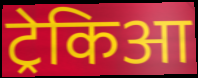
ट्रेकिआ